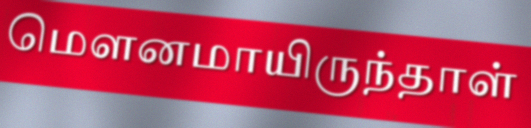
மௌனமாயிருந்தாள்